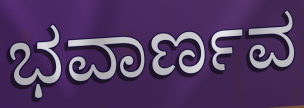
ಭವಾರ್ಣವ